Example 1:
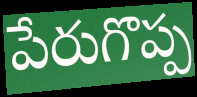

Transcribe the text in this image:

పేరుగొప్ప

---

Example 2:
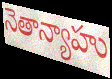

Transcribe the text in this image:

నెతాన్యాహు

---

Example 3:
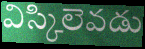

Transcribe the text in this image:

విస్కిలెవడు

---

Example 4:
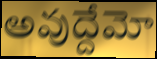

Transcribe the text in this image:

అవుద్దేమో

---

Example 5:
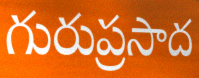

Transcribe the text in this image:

గురుప్రసాద